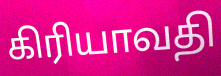
கிரியாவதி